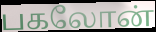
பகலோன்